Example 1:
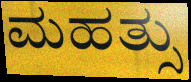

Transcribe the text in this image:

ಮಹತ್ಸು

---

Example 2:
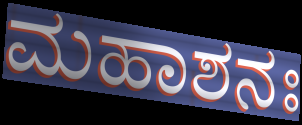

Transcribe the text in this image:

ಮಹಾಶನಃ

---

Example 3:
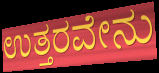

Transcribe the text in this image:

ಉತ್ತರವೇನು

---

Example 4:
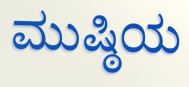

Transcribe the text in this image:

ಮುಷ್ಠಿಯ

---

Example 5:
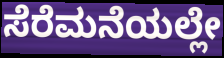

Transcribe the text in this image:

ಸೆರೆಮನೆಯಲ್ಲೇ